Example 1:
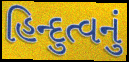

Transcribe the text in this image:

હિન્દુત્વનું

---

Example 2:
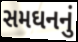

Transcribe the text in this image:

સમઘનનું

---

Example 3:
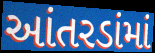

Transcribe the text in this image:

આંતરડાંમાં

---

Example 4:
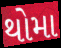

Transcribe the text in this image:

થોમા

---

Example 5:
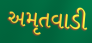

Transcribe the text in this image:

અમૃતવાડી